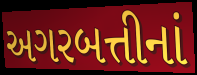
અગરબત્તીનાં